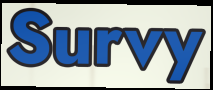
Survy